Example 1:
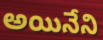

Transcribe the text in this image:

అయినేని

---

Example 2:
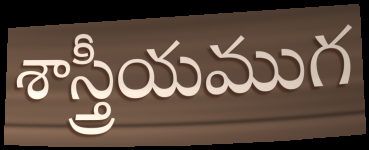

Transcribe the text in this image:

శాస్త్రీయముగ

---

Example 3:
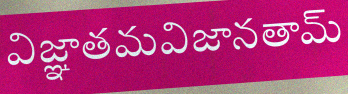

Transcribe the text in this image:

విజ్ఞాతమవిజానతామ్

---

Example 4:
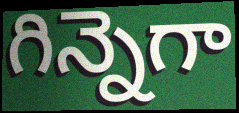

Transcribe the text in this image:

గిన్నెగా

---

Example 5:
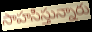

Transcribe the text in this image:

సాహసిస్తున్నారు